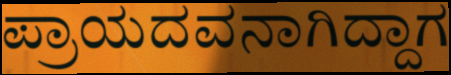
ಪ್ರಾಯದವನಾಗಿದ್ದಾಗ